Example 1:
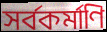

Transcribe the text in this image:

সর্বকর্মাণি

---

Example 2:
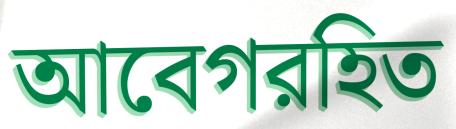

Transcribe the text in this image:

আবেগরহিত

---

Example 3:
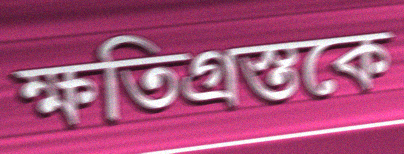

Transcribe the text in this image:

ক্ষতিগ্রস্তকে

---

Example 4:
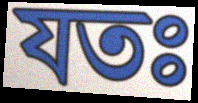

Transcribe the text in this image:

যতঃ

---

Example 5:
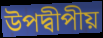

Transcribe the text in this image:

উপদ্বীপীয়